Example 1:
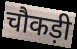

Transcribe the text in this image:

चौकड़ी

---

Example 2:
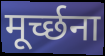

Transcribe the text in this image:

मूर्च्छना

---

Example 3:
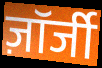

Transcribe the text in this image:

ज़ॉर्जी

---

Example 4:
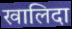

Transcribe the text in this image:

खालिदा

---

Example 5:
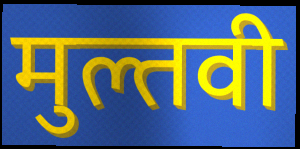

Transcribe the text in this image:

मुल्तवी